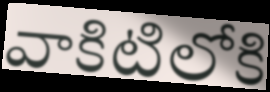
వాకిటిలోకి